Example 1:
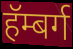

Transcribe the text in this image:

हॅम्बर्ग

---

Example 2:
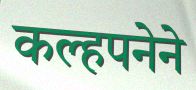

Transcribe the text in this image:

कल्हपनेने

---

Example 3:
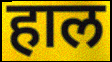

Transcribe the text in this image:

हाल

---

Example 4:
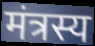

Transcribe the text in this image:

मंत्रस्य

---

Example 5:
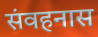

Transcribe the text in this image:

संवहनास